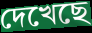
দেখেছে